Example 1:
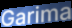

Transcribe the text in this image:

Garima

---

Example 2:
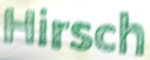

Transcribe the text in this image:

Hirsch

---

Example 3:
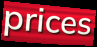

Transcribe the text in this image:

prices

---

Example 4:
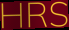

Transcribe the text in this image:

HRS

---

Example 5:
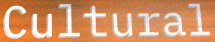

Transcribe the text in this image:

Cultural